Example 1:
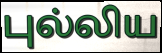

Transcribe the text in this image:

புல்லிய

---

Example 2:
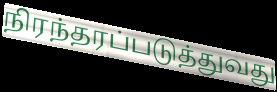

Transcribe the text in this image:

நிரந்தரப்படுத்துவது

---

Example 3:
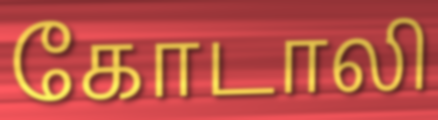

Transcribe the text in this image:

கோடாலி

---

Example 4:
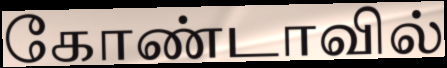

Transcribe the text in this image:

கோண்டாவில்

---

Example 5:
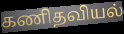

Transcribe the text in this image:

கணிதவியல்